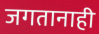
जगतानाही